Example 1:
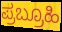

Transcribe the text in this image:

ಪ್ರಬ್ರೂಹಿ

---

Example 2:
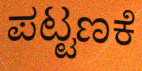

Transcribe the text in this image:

ಪಟ್ಟಣಕೆ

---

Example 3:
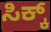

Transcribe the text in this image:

ಸಿಕ್ಕ್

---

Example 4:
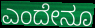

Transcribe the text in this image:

ಎಂದೇನೂ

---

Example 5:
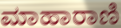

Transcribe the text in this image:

ಮಾಹಾರಾಣಿ